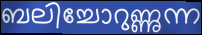
ബലിച്ചോറുണ്ണുന്ന